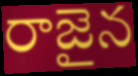
రాజైన